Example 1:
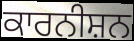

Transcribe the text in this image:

ਕਾਰਨੀਸ਼ਨ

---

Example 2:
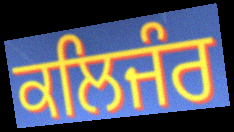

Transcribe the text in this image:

ਕਲਿਜੰਰ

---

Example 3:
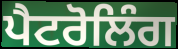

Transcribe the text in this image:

ਪੈਟਰੋਲਿੰਗ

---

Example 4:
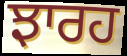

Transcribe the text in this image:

ਝਾਰਹ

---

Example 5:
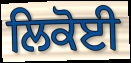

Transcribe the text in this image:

ਲਿਕੋਈ